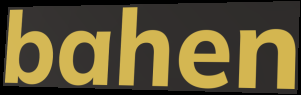
bahen